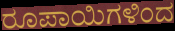
ರೂಪಾಯಿಗಳಿಂದ